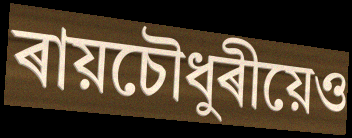
ৰায়চৌধুৰীয়েও